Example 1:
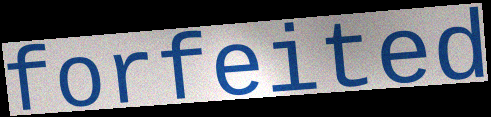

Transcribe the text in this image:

forfeited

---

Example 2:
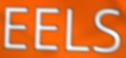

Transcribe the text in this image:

EELS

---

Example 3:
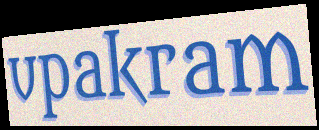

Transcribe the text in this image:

upakram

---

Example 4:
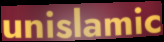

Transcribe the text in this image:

unislamic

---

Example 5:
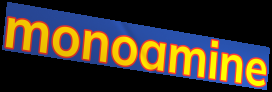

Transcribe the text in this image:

monoamine